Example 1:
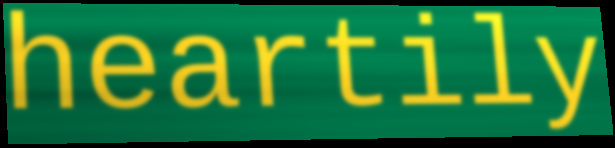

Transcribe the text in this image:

heartily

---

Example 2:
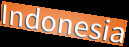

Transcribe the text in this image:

Indonesia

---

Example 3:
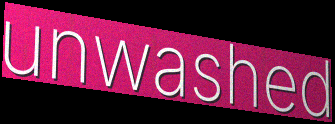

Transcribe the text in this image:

unwashed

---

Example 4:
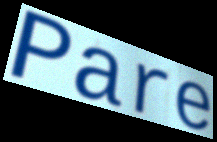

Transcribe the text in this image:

Pare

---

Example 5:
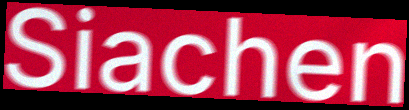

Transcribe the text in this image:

Siachen